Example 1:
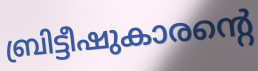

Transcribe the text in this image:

ബ്രിട്ടീഷുകാരന്റെ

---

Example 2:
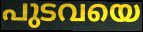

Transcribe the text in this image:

പുടവയെ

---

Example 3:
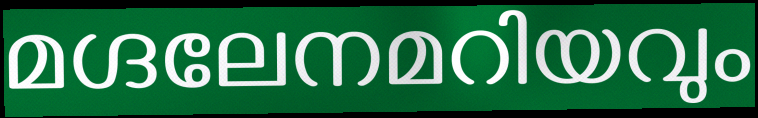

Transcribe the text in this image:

മഗ്ദലേനമറിയവും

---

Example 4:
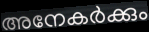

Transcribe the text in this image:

അനേകർക്കും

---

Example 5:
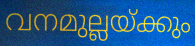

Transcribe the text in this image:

വനമുല്ലയ്ക്കും